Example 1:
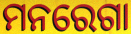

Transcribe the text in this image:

ମନରେଗା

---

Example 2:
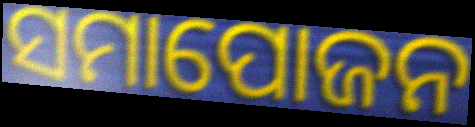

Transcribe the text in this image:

ସମାପୋଜନ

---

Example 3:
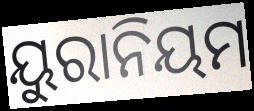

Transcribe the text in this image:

ୟୁରାନିୟମ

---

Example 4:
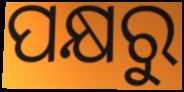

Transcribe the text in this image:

ପକ୍ଷରୁ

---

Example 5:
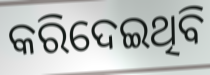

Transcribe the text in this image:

କରିଦେଇଥିବି